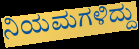
ನಿಯಮಗಳಿದ್ದು